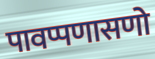
पावप्पणासणो